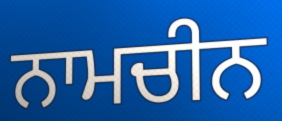
ਨਾਮਚੀਨ